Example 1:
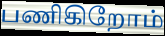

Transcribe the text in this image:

பணிகிறோம்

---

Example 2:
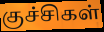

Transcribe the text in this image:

குச்சிகள்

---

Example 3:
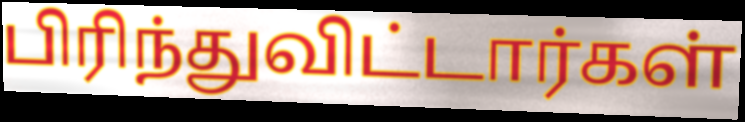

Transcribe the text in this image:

பிரிந்துவிட்டார்கள்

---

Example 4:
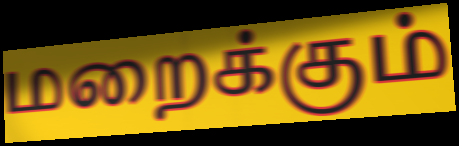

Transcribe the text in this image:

மறைக்கும்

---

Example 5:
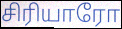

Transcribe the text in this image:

சிரியாரோ